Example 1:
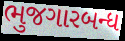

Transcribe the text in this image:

ભુજગારબન્ધ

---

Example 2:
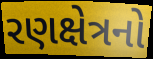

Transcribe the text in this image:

રણક્ષેત્રનો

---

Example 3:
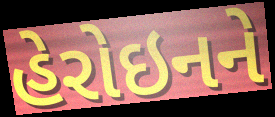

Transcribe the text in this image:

હેરોઇનને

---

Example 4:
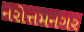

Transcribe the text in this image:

નરોત્તમનગર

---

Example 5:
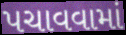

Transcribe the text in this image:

પચાવવામાં